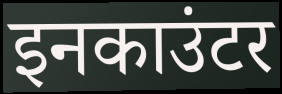
इनकाउंटर